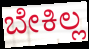
ಬೇಕಿಲ್ಲ